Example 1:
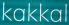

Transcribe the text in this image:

kakkal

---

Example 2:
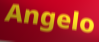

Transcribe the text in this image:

Angelo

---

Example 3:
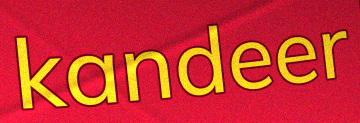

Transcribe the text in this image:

kandeer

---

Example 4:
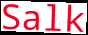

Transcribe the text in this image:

Salk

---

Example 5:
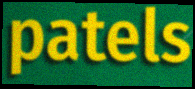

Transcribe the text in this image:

patels